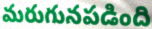
మరుగునపడింది